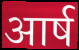
आर्ष